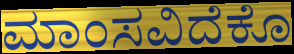
ಮಾಂಸವಿದೆಕೊ